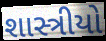
શાસ્ત્રીયો